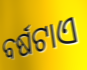
ବର୍ଷଟାଏ